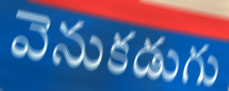
వెనుకడుగు